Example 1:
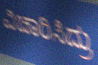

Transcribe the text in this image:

ವಿಚಾರಿಸಿದ್ರು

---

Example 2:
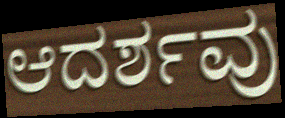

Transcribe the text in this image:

ಆದರ್ಶವು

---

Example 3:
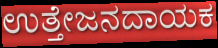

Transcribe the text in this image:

ಉತ್ತೇಜನದಾಯಕ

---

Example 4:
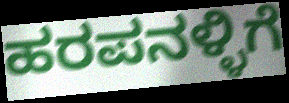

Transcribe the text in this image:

ಹರಪನಳ್ಳಿಗೆ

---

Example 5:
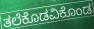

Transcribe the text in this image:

ತಲೆಕೊಡವಿಕೊಂಡ